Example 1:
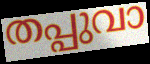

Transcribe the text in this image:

തപ്പുവാ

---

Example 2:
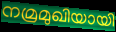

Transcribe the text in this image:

നമ്രമുഖിയായി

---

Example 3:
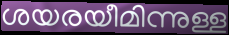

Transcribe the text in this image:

ശയരയീമിന്നുള്ള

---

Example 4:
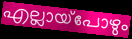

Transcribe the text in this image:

എല്ലായ്‌പോഴും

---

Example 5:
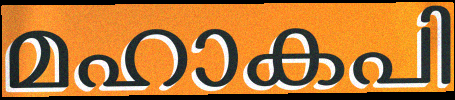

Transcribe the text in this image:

മഹാകപി